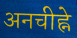
अनचीह्ने